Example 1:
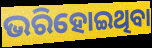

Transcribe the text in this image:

ଭରିହୋଇଥିବା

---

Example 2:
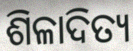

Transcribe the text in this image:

ଶିଳାଦିତ୍ୟ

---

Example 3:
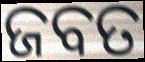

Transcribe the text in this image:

ଜବତ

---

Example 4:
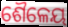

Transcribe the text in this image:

ଶୈଳେୟ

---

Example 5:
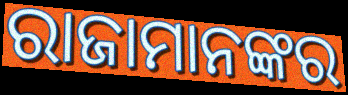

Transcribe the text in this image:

ରାଜାମାନଙ୍କର